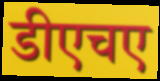
डीएचए